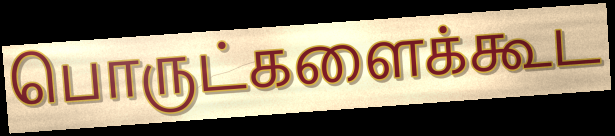
பொருட்களைக்கூட